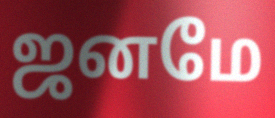
ஜனமே